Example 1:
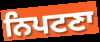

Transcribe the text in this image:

ਨਿਪਟਣਾ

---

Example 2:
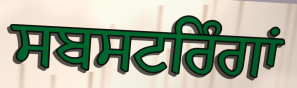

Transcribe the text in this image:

ਸਬਸਟਰਿੰਗਾਂ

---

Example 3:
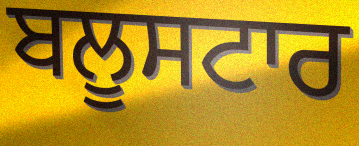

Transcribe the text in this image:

ਬਲੂਸਟਾਰ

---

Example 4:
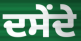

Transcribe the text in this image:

ਦਸੇਂਦੇ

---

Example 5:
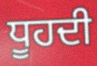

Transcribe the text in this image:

ਧੂਹਦੀ